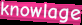
knowlage